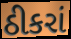
ઠીકરાં